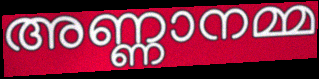
അണ്ണാനമ്മ